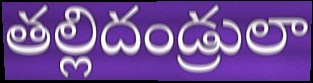
తల్లిదండ్రులా